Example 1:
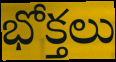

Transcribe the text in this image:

భోక్తలు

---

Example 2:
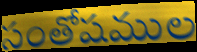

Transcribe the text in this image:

సంతోషముల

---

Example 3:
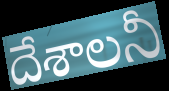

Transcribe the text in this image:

దేశాలనీ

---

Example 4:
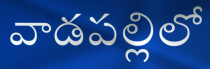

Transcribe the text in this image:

వాడపల్లిలో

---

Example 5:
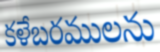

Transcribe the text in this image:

కళేబరములను